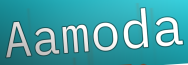
Aamoda